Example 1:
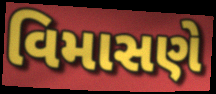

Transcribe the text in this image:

વિમાસણે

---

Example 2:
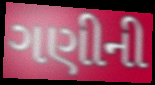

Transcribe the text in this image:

ગણીની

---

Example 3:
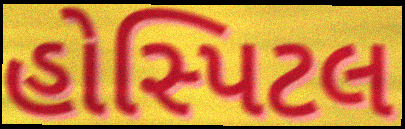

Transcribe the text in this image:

હોસ્પિટલ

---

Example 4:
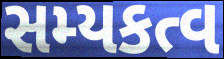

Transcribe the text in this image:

સમ્યકત્વ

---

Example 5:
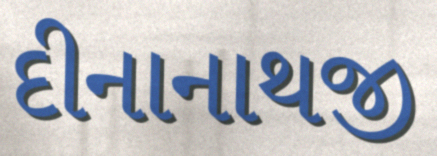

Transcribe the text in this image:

દીનાનાથજી